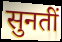
सुनतीं